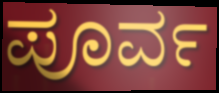
ಪೂರ್ವ